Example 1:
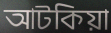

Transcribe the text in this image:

আটকিয়া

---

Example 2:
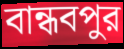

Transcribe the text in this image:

বান্ধবপুর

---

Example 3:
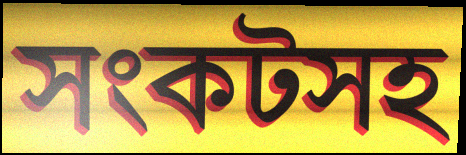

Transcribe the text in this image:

সংকটসহ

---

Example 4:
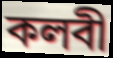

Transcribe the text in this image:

কলবী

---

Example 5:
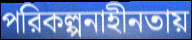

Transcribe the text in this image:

পরিকল্পনাহীনতায়